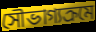
সৌভাগ্যক্রমে